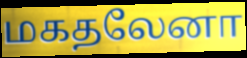
மகதலேனா